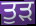
ਤੁੜ